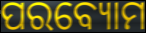
ପରବ୍ୟୋମ